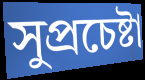
সুপ্রচেষ্টা